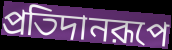
প্রতিদানরূপে